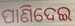
ପାଣିଦେଇ